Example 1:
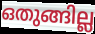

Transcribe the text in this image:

ഒതുങ്ങില്ല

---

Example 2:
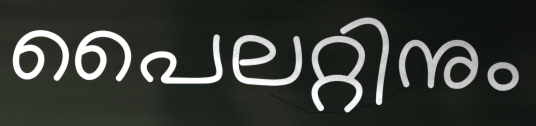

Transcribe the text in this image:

പൈലറ്റിനും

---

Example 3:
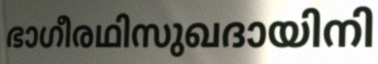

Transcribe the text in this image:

ഭാഗീരഥിസുഖദായിനി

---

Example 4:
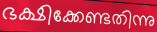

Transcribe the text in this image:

ഭക്ഷിക്കേണ്ടതിന്നു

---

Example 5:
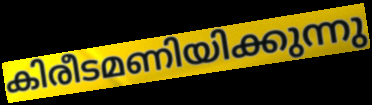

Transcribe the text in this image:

കിരീടമണിയിക്കുന്നു